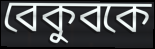
বেকুবকে